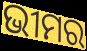
ଭୀମର